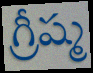
గ్రీష్మ